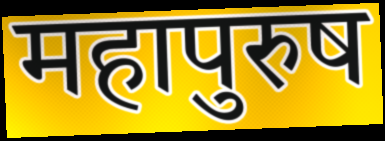
महापुरुष